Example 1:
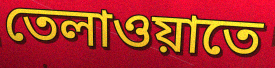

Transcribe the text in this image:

তেলাওয়াতে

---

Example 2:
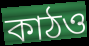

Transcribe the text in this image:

কাঠও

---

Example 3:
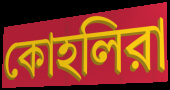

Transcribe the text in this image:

কোহলিরা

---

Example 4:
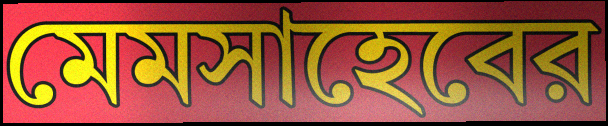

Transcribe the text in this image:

মেমসাহেবের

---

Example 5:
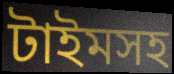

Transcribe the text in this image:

টাইমসহ